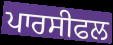
ਪਾਰਸੀਫਲ